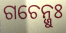
ଗଚେନ୍ଜୁଃ